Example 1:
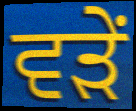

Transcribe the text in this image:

ਵੜੇਂ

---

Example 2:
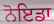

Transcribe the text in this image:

ਨੋਇਡਾ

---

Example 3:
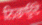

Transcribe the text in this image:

ਨਿਭਾਉਂਦੇ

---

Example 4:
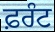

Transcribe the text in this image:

ਫ਼ਰੰਟ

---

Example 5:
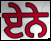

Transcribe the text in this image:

ਏੇਨੇ